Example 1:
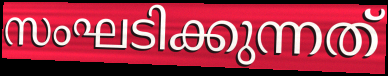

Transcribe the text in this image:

സംഘടിക്കുന്നത്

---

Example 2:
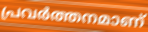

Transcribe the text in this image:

പ്രവർത്തനമാണ്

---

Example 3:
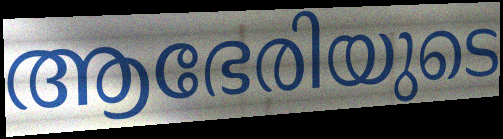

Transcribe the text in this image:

ആഭേരിയുടെ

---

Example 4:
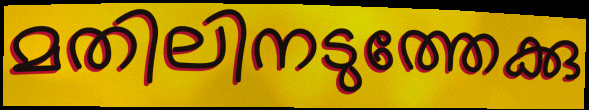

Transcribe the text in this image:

മതിലിനടുത്തേക്കു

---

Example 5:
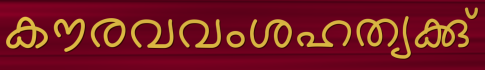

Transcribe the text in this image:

കൗരവവംശഹത്യക്കു്